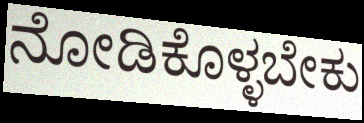
ನೋಡಿಕೊಳ್ಳಬೇಕು